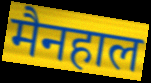
मैनहाल